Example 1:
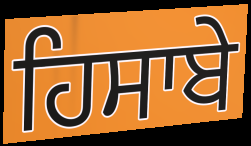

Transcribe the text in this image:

ਹਿਸਾਬੇ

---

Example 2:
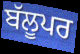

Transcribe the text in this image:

ਬੱਲੂਪਰ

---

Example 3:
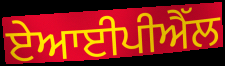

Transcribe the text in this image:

ਏਆਈਪੀਐੱਲ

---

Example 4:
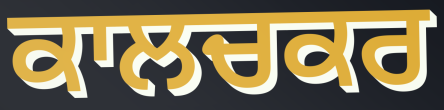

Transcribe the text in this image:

ਕਾਲਚਕਰ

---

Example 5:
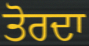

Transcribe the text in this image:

ਤੋਰਦਾ